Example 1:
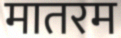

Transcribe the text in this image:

मातरम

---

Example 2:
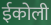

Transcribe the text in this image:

ईकोली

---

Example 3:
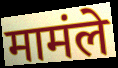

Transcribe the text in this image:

मामंले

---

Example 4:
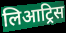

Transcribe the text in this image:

लिआट्रिस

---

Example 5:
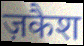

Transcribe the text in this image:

ज़कैश